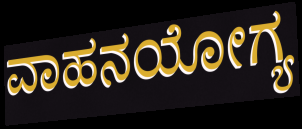
ವಾಹನಯೋಗ್ಯ